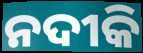
ନଦୀକି